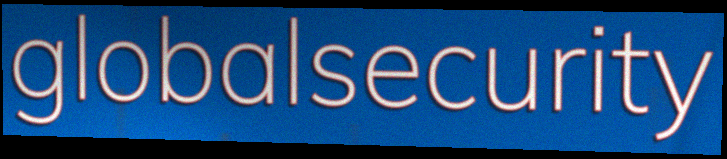
globalsecurity